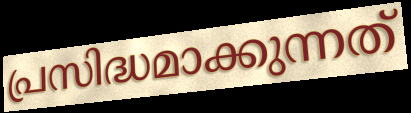
പ്രസിദ്ധമാക്കുന്നത്